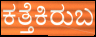
ಕತ್ತೆಕಿರುಬ